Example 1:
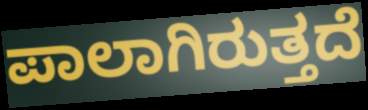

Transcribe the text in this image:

ಪಾಲಾಗಿರುತ್ತದೆ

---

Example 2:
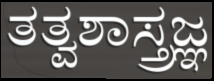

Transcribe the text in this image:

ತತ್ವಶಾಸ್ತ್ರಜ್ಞ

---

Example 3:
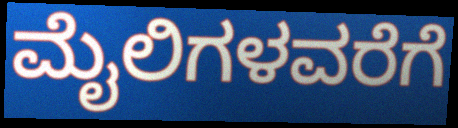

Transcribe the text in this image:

ಮೈಲಿಗಳವರೆಗೆ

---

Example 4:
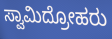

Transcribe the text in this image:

ಸ್ವಾಮಿದ್ರೋಹರು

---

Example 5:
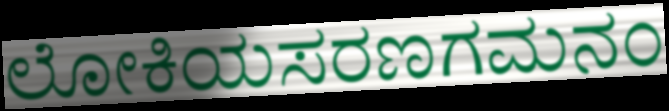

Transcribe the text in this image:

ಲೋಕಿಯಸರಣಗಮನಂ